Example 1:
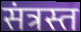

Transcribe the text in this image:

संत्रस्त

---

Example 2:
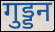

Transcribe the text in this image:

गुड्डन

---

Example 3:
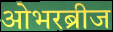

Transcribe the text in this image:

ओभरब्रीज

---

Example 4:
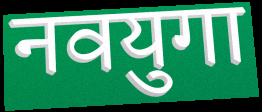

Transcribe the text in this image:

नवयुगा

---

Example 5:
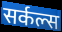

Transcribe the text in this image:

सर्कल्स